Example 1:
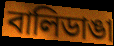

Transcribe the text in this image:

বালিডাঙা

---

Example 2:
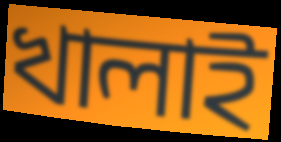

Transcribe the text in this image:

খালাই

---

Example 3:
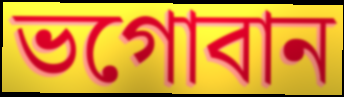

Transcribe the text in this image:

ভগোবান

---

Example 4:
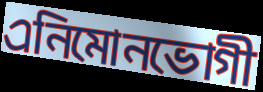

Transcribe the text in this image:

এনিমোনভোগী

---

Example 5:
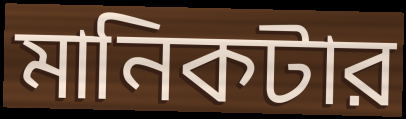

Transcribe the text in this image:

মানিকটার